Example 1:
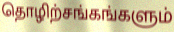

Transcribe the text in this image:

தொழிற்சங்கங்களும்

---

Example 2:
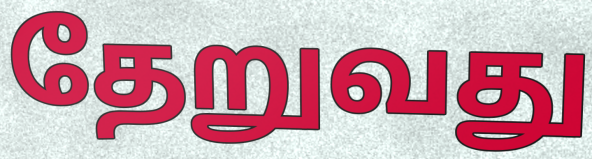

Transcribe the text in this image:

தேறுவது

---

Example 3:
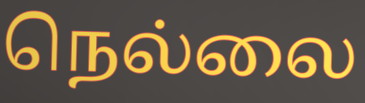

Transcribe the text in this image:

நெல்லை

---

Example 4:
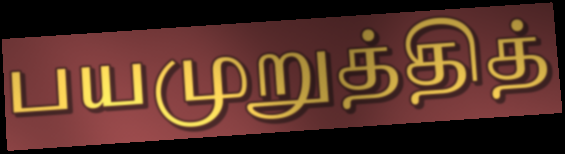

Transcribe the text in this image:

பயமுறுத்தித்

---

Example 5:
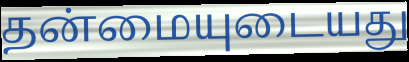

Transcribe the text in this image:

தன்மையுடையது